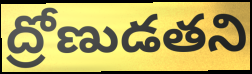
ద్రోణుడతని